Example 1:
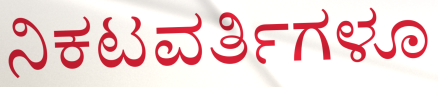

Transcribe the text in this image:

ನಿಕಟವರ್ತಿಗಳೂ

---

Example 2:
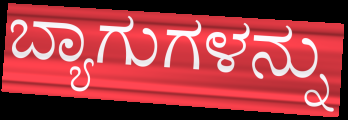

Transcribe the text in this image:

ಬ್ಯಾಗುಗಳನ್ನು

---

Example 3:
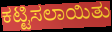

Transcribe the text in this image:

ಕಟ್ಟಿಸಲಾಯಿತು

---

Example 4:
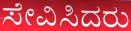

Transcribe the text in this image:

ಸೇವಿಸಿದರು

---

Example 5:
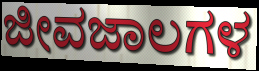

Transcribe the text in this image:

ಜೀವಜಾಲಗಳ